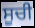
ਸੂਚੀ